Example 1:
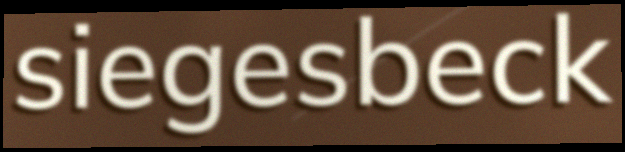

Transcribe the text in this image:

siegesbeck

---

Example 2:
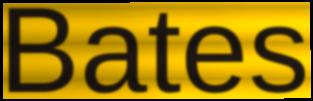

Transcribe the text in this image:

Bates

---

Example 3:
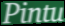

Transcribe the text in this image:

Pintu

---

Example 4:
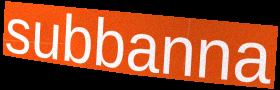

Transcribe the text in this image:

subbanna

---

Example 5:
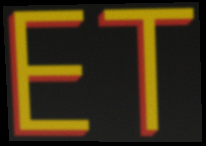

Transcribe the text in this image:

ET